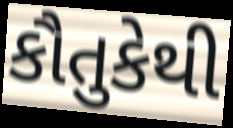
કૌતુકેથી